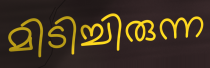
മിടിച്ചിരുന്ന